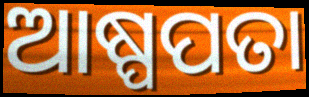
ଆଷ୍ପପତା